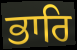
ਭਾਰਿ